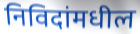
निविदांमधील